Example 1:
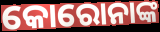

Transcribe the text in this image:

କୋରୋନାଙ୍କ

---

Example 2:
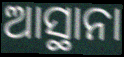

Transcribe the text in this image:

ଆସ୍ଥାନା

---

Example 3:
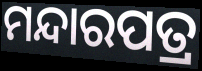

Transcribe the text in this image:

ମନ୍ଦାରପତ୍ର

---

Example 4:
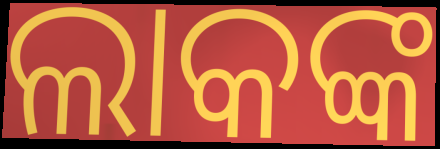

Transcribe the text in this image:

ଲାକଙ୍କ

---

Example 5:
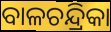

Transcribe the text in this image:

ବାଳଚନ୍ଦ୍ରିକା